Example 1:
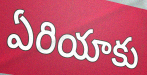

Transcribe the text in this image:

ఏరియాకు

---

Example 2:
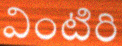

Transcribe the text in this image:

వింటిరి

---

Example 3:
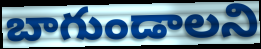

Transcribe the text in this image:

బాగుండాలని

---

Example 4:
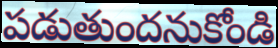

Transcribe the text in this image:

పడుతుందనుకోండి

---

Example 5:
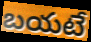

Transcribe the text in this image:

బయటే